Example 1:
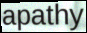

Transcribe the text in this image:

apathy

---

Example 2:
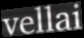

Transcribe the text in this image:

vellai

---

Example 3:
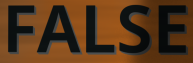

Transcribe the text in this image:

FALSE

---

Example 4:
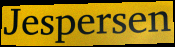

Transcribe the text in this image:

Jespersen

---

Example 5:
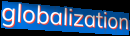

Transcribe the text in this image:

globalization